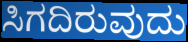
ಸಿಗದಿರುವುದು